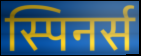
स्पिनर्स